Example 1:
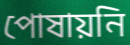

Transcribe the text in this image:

পোষায়নি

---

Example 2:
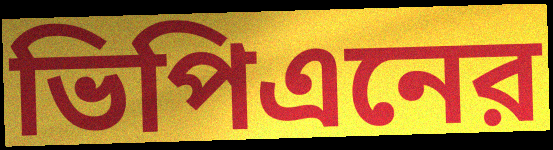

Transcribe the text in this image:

ভিপিএনের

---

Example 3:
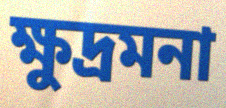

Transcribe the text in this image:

ক্ষুদ্রমনা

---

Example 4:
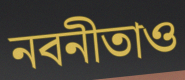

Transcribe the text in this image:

নবনীতাও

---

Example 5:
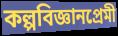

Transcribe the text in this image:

কল্পবিজ্ঞানপ্রেমী